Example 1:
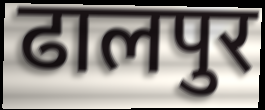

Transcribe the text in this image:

ढालपुर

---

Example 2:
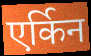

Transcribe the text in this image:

एर्किन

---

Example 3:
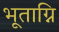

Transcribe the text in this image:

भूताग्नि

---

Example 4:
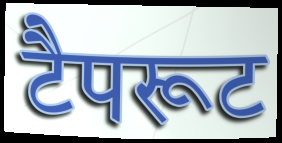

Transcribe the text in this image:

टैपरूट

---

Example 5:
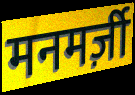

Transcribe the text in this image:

मनमर्ज़ी